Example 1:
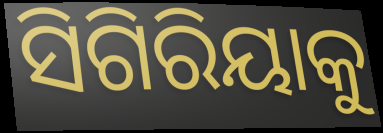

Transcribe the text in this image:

ସିଗିରିୟାକୁ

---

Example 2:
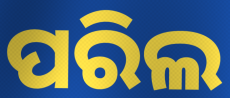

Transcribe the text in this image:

ପରିଲ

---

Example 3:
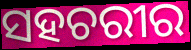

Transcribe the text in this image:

ସହଚରୀର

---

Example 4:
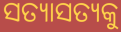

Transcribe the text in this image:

ସତ୍ୟାସତ୍ୟକୁ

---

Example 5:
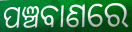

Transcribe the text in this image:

ପଞ୍ଚବାଣରେ